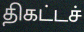
திகட்டச்